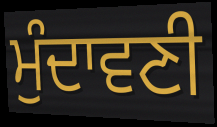
ਮੁੰਦਾਵਣੀ